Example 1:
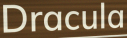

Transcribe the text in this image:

Dracula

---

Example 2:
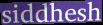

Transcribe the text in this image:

siddhesh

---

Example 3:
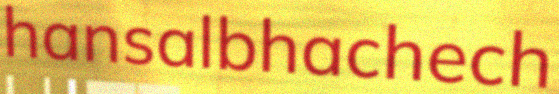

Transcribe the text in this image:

hansalbhachech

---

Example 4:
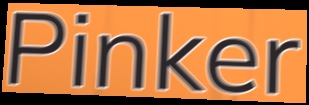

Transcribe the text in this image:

Pinker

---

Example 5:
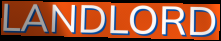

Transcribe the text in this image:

LANDLORD